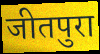
जीतपुरा